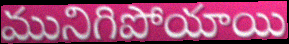
మునిగిపోయాయి